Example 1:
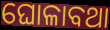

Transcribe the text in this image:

ଘୋଳାବଥା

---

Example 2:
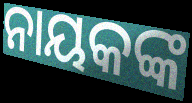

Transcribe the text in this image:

ନାୟକଙ୍କ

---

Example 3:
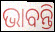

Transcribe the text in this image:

ଭାବନ୍ତି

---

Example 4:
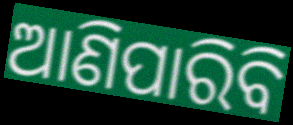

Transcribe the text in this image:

ଆଣିପାରିବି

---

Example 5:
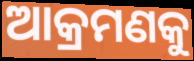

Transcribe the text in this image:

ଆକ୍ରମଣକୁ